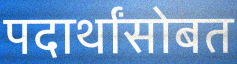
पदार्थांसोबत